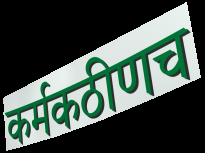
कर्मकठीणच